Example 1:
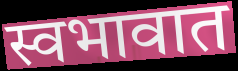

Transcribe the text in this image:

स्वभावात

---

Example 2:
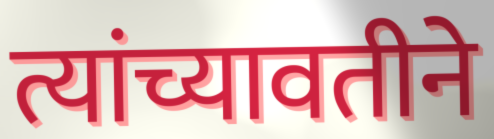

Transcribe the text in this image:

त्यांच्यावतीने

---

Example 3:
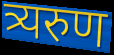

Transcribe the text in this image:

त्र्यरुण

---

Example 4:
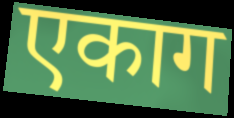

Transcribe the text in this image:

एकाग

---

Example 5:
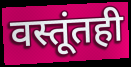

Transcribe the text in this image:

वस्तूंतही